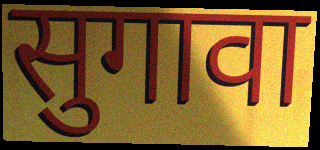
सुगावा